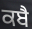
ਕਬੈ